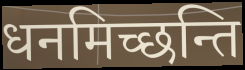
धनमिच्छन्ति